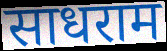
साधराम